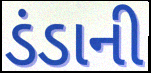
ડંડાની